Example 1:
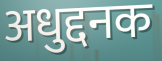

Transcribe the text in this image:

अधुद्दनक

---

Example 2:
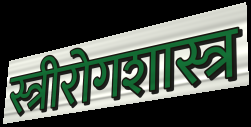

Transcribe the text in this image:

स्त्रीरोगशास्त्र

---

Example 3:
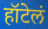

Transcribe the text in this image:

हॉटेलं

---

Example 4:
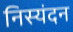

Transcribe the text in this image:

निस्यंदन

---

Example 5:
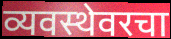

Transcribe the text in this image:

व्यवस्थेवरचा